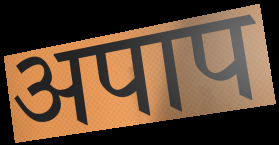
अपाप